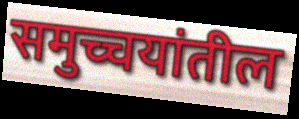
समुच्चयांतील